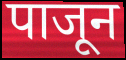
पाजून